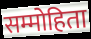
सम्मोहिता